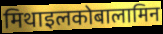
मिथाइलकोबालामिन